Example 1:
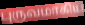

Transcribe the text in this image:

புருவமாகிய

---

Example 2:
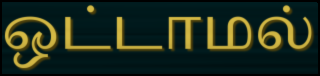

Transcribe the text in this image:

ஒட்டாமல்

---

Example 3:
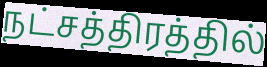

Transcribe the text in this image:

நட்சத்திரத்தில்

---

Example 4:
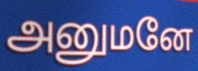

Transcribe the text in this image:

அனுமனே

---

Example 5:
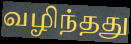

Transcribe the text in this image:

வழிந்தது